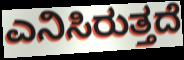
ಎನಿಸಿರುತ್ತದೆ